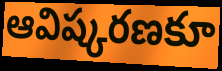
ఆవిష్కరణకూ